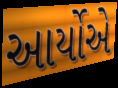
આર્યોએ